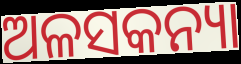
ଅଳସକନ୍ୟା